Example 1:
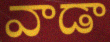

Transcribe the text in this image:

వాడా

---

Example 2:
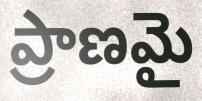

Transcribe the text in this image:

ప్రాణమై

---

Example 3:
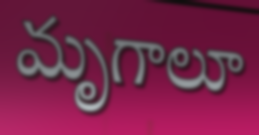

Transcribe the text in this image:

మృగాలూ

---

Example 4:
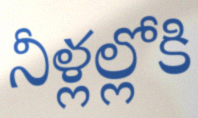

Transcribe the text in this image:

నీళ్లల్లోకి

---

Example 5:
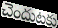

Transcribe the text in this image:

చెందుటకు